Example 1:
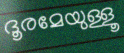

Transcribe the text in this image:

ദൂരമേയുള്ളൂ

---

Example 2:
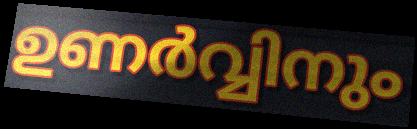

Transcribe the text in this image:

ഉണർവ്വിനും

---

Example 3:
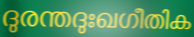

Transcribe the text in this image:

ദുരന്തദുഃഖഗീതിക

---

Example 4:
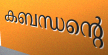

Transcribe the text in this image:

കബന്ധന്റെ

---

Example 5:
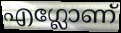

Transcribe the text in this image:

എഗ്ലോണ്